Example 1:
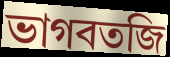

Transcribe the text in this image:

ভাগবতজি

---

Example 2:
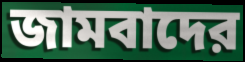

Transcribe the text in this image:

জামবাদের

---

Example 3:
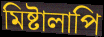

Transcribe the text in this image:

মিষ্টালাপি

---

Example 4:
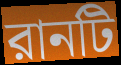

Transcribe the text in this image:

রানটি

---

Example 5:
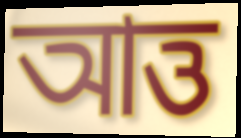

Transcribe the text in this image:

আত্ত